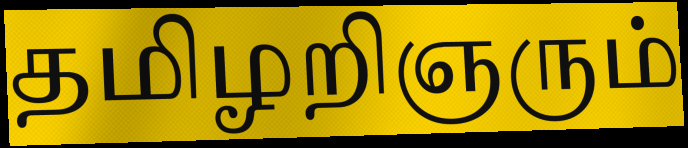
தமிழறிஞரும்